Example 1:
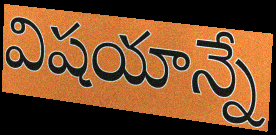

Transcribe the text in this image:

విషయాన్నే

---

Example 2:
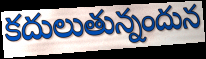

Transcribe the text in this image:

కదులుతున్నందున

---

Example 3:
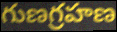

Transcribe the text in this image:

గుణగ్రహణ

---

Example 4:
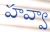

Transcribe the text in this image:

హవ్వా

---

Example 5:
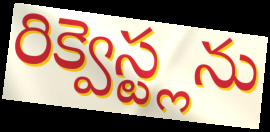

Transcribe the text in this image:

రిక్వెస్ట్లను